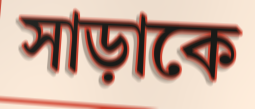
সাড়াকে